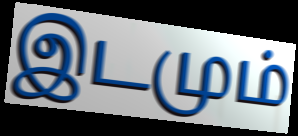
இடமும்